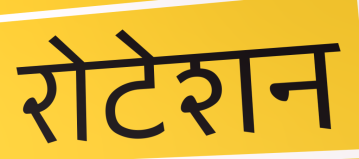
रोटेशन